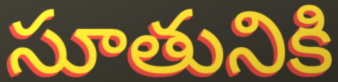
సూతునికి